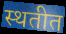
स्थतीत